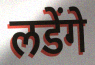
लडेंगे